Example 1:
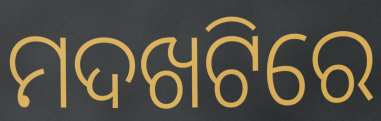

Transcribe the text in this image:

ମଦଖଟିରେ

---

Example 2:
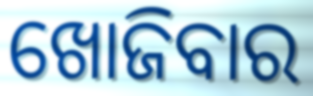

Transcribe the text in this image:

ଖୋଜିବାର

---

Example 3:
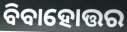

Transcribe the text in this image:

ବିବାହୋତ୍ତର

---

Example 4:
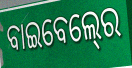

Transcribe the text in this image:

ବାଇବେଲ୍‍ରେ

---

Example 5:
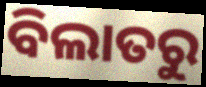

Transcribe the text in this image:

ବିଲାତରୁ